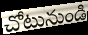
చోటునుండి